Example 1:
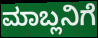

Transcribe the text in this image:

ಮಾಬ್ಲನಿಗೆ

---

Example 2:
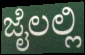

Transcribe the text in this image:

ಜೈಲಲ್ಲಿ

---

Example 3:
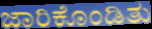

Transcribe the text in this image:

ಜಾರಿಕೊಂಡಿತು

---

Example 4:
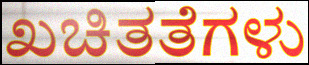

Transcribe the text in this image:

ಖಚಿತತೆಗಳು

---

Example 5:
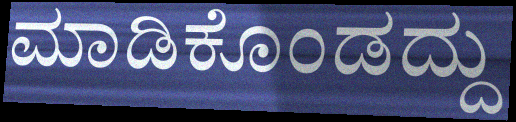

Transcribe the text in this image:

ಮಾಡಿಕೊಂಡದ್ದು